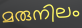
മരുനിലം